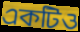
একটিও